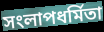
সংলাপধর্মিতা